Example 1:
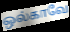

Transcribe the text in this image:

ஒல்காவே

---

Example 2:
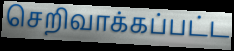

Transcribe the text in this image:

செறிவாக்கப்பட்ட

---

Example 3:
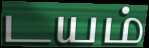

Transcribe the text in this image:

டயம்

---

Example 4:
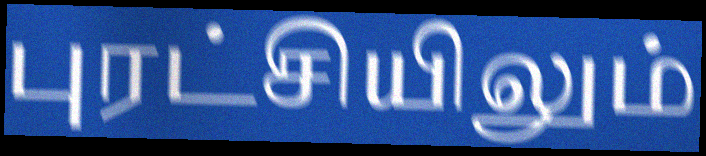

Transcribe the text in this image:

புரட்சியிலும்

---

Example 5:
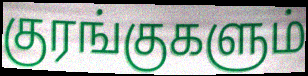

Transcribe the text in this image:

குரங்குகளும்